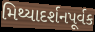
મિથ્યાદર્શનપૂર્વક